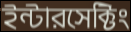
ইন্টারসেক্টিং